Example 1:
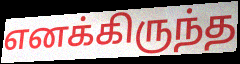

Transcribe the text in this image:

எனக்கிருந்த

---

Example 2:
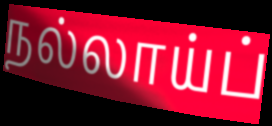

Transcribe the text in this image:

நல்லாய்ப்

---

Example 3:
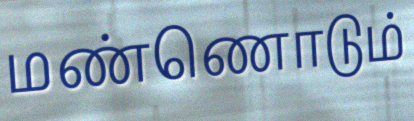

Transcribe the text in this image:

மண்ணொடும்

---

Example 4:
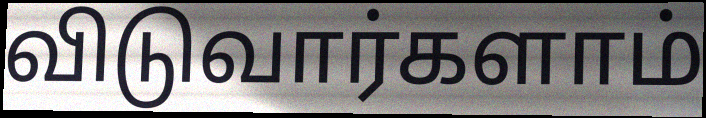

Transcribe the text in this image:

விடுவார்களாம்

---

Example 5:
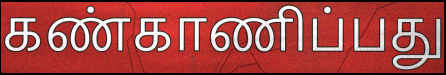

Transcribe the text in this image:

கண்காணிப்பது